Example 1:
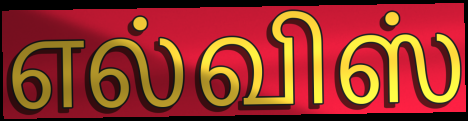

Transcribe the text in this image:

எல்விஸ்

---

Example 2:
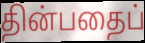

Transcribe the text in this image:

தின்பதைப்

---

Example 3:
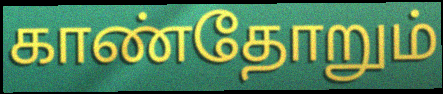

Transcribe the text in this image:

காண்தோறும்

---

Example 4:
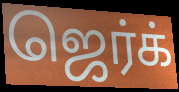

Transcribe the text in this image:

ஜெர்க்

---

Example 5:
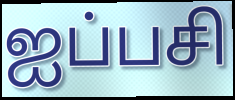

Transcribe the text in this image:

ஐப்பசி